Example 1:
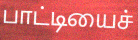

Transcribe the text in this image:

பாட்டியைச்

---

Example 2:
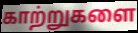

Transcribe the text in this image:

காற்றுகளை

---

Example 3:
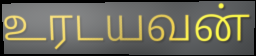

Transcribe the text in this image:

உரடயவன்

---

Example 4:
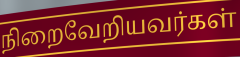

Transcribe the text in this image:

நிறைவேறியவர்கள்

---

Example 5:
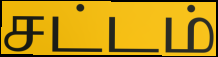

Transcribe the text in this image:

சட்டம்